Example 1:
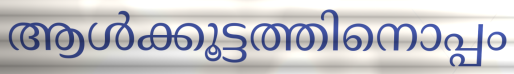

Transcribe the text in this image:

ആൾക്കൂട്ടത്തിനൊപ്പം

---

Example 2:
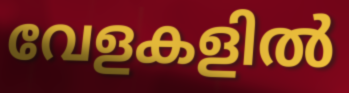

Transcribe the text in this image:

വേളകളിൽ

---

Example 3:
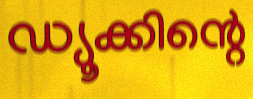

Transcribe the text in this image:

ഡ്യൂക്കിന്റെ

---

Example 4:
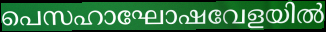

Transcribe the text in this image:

പെസഹാഘോഷവേളയിൽ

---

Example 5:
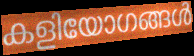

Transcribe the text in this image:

കളിയോഗങ്ങൾ